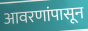
आवरणांपासून